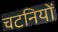
चटनियों